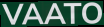
VAATO